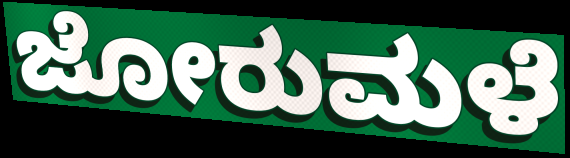
ಜೋರುಮಳೆ